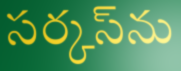
సర్కస్‌ను